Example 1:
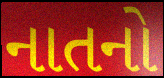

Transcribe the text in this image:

નાતનો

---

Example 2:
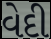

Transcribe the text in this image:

વેદી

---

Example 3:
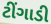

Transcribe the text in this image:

ટીંગાડી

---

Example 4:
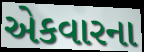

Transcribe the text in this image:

એકવારના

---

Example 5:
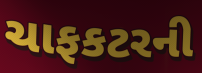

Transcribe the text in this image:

ચાફકટરની